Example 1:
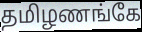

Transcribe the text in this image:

தமிழணங்கே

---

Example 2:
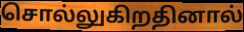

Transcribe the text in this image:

சொல்லுகிறதினால்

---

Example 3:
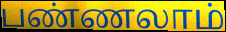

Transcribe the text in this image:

பண்ணலாம்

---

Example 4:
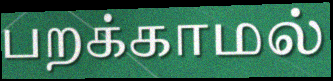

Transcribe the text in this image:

பறக்காமல்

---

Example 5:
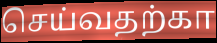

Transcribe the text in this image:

செய்வதற்கா